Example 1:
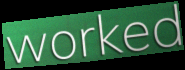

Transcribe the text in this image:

worked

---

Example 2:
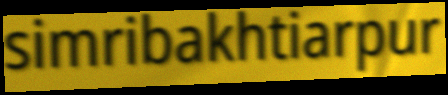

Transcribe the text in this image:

simribakhtiarpur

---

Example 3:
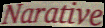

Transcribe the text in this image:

Narative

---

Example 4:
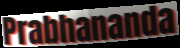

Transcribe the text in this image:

Prabhananda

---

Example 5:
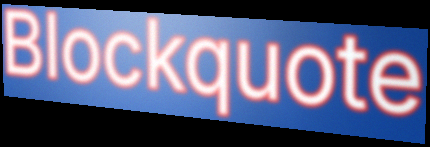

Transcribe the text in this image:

Blockquote